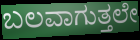
ಬಲವಾಗುತ್ತಲೇ